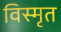
विस्मृत